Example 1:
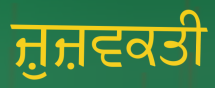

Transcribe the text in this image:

ਜ਼ੁਜ਼ਵਕਤੀ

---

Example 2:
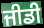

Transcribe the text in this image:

ਜੀਡੀ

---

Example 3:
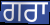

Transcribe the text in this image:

ਗਰਾ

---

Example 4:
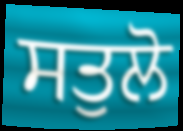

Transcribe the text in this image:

ਸਤੁਲੋ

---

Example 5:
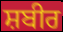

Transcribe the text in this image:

ਸ਼ਬੀਰ